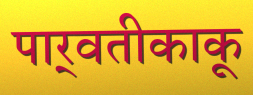
पार्वतीकाकू